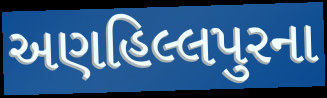
અણહિલ્લપુરના